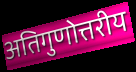
अतिगुणोत्तरीय